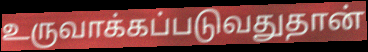
உருவாக்கப்படுவதுதான்